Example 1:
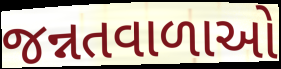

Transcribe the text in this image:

જન્નતવાળાઓ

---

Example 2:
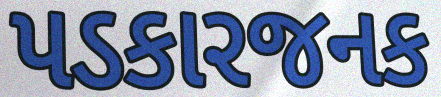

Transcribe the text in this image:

પડકારજનક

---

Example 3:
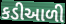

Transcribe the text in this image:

કડીઆળી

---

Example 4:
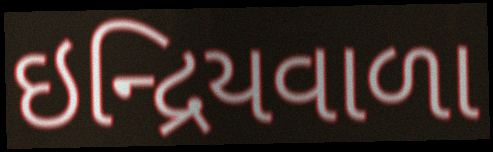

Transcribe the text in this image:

ઇન્દ્રિયવાળા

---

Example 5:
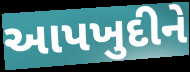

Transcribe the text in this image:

આપખુદીને